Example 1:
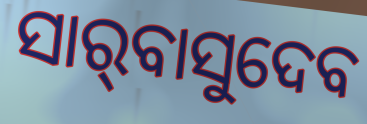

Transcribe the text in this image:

ସାର୍‌ବାସୁଦେବ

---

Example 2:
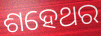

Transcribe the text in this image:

ଶହେଥର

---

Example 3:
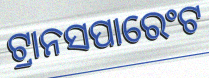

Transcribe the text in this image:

ଟ୍ରାନସପାରେଂଟ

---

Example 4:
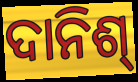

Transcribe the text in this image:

ଦାନିଶ୍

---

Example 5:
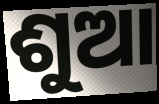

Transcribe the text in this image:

ଶୁଆ